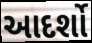
આદર્શો